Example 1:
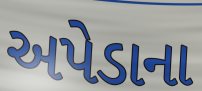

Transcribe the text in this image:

અપેડાના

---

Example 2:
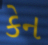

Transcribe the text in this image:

કેન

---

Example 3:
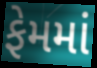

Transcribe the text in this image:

ફેમમાં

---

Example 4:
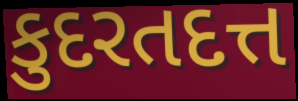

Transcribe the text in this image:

કુદરતદત્ત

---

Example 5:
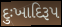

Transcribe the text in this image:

દુઃખાદિરૂપ